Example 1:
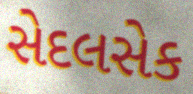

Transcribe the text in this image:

સેદલસેક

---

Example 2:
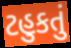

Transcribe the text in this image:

ટહુકતું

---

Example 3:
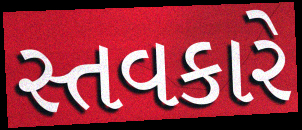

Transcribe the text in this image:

સ્તવકારે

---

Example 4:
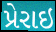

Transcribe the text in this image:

પ્રેરાઇ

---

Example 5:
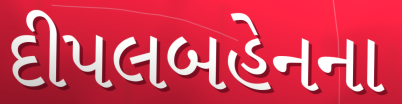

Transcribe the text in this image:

દીપલબહેનના